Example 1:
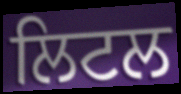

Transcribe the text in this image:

ਲਿਟਲ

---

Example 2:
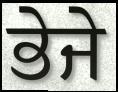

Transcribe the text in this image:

ਭੇਜੇ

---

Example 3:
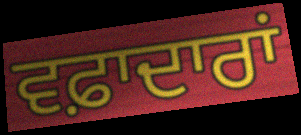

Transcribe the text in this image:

ਵਫ਼ਾਦਾਰਾਂ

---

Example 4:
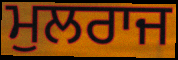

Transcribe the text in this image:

ਮੁਲਰਾਜ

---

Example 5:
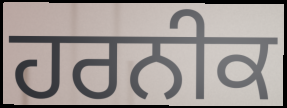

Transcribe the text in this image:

ਹਰਨੀਕ